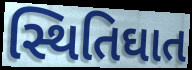
સ્થિતિઘાત